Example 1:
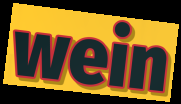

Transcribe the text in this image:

wein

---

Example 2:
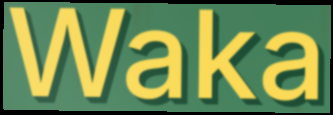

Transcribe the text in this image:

Waka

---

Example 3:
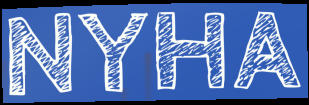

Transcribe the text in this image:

NYHA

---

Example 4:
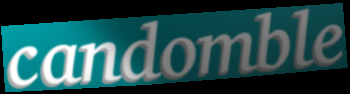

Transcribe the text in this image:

candomble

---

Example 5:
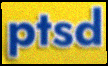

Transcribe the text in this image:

ptsd